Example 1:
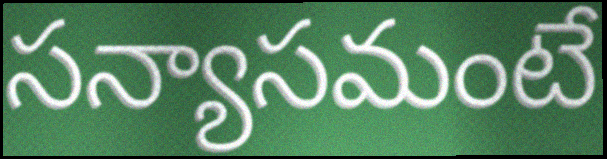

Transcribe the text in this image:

సన్యాసమంటే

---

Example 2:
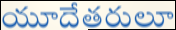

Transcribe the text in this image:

యూదేతరులూ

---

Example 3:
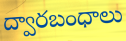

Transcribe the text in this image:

ద్వారబంధాలు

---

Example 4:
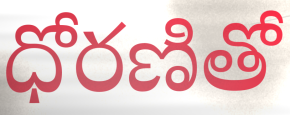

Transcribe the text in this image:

ధోరణితో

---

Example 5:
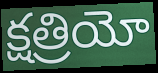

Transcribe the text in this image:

క్షత్రియో